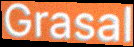
Grasal